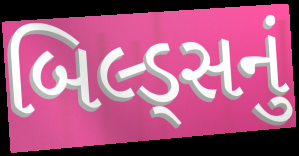
બિલ્ડ્સનું